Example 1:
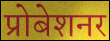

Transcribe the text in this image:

प्रोबेशनर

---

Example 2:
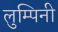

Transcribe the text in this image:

लुम्पिनी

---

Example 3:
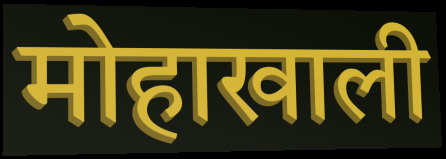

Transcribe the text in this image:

मोहाखाली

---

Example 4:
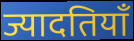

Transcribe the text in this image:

ज्यादतियाँ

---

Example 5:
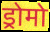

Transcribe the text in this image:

ड्रोमो